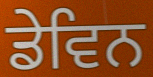
ਡੇਵਿਨ